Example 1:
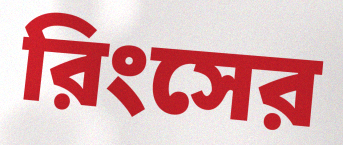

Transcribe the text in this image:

রিংসের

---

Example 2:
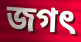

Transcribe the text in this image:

জগৎ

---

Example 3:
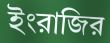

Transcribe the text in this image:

ইংরাজির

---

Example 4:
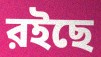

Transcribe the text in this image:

রইছে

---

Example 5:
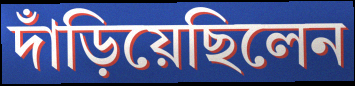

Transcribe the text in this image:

দাঁড়িয়েছিলেন